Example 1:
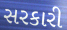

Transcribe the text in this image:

સરકારી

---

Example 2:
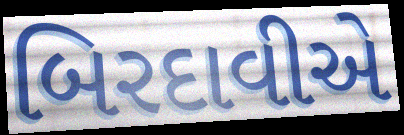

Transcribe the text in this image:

બિરદાવીએ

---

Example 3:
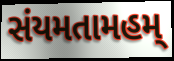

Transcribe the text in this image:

સંયમતામહમ્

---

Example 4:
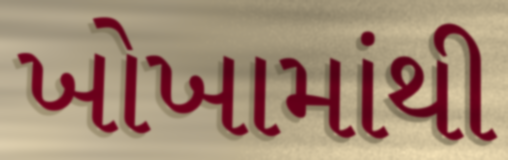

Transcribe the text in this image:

ખોખામાંથી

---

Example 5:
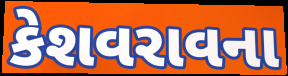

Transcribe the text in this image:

કેશવરાવના